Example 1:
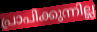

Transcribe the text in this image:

പ്രാപിക്കുന്നില്ല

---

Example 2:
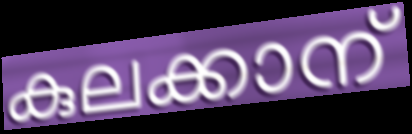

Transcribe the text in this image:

കുലക്കാന്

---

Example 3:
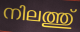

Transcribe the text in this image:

നിലത്തു്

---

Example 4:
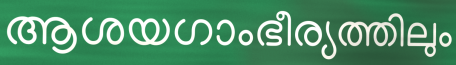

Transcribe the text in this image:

ആശയഗാംഭീര്യത്തിലും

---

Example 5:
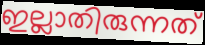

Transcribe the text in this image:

ഇല്ലാതിരുന്നത്